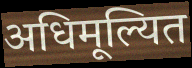
अधिमूल्यित